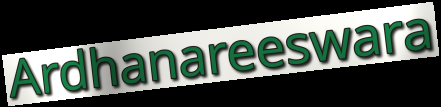
Ardhanareeswara